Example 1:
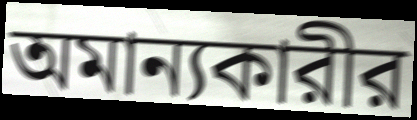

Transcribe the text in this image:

অমান্যকারীর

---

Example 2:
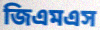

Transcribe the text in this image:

জিএমএস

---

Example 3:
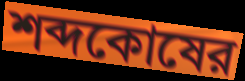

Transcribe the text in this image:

শব্দকোষের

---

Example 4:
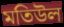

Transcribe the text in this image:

মতিউল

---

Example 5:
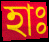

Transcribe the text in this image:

হাঃ